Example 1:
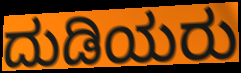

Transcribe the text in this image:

ದುಡಿಯರು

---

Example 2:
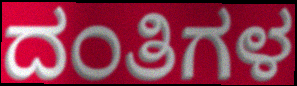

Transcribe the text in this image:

ದಂತಿಗಳ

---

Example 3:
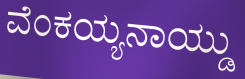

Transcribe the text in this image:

ವೆಂಕಯ್ಯನಾಯ್ಡು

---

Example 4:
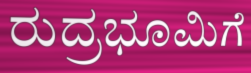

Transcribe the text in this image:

ರುದ್ರಭೂಮಿಗೆ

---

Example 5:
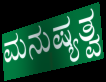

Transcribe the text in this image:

ಮನುಷ್ಯತ್ವ